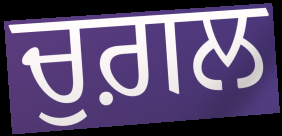
ਚੁਗ਼ਲ